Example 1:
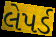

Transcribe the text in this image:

લેપર્ડ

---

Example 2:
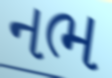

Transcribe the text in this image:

નભ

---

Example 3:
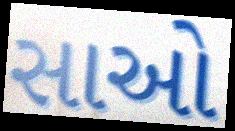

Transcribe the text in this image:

સાઓ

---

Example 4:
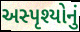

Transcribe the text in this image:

અસ્પૃશ્યોનું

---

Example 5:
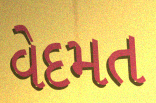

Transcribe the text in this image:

વેદમત